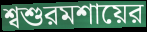
শ্বশুরমশায়ের